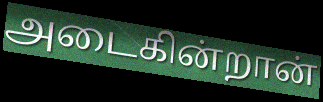
அடைகின்றான்